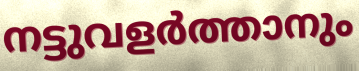
നട്ടുവളർത്താനും